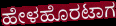
ಹೇಳಹೊರಟಾಗ